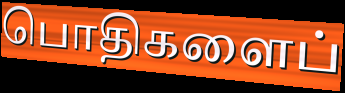
பொதிகளைப்